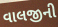
વાલજીની